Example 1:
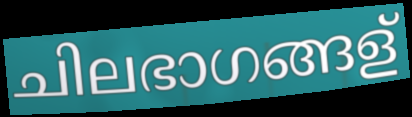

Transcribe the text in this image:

ചിലഭാഗങ്ങള്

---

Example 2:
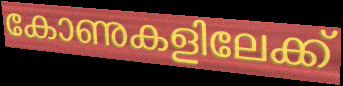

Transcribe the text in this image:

കോണുകളിലേക്ക്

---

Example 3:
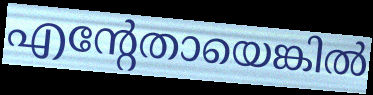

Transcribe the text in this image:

എന്റേതായെങ്കിൽ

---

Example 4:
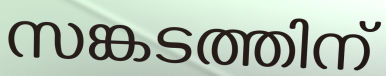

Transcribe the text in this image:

സങ്കടത്തിന്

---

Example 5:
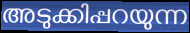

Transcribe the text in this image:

അടുക്കിപ്പറയുന്ന